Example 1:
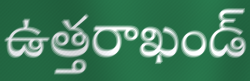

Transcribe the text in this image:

ఉత్తరాఖండ్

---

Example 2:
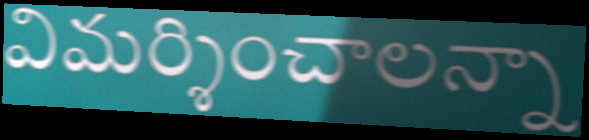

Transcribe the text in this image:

విమర్శించాలన్నా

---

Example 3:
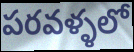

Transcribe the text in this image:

పరవళ్ళలో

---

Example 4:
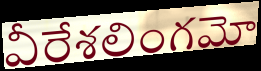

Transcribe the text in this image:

వీరేశలింగమో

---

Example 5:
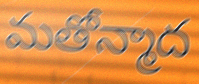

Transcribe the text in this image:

మతోన్మాద